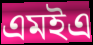
এমইএ